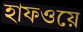
হাফওয়ে